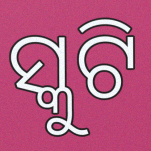
ସ୍କୁଟି